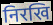
निरखि